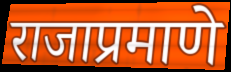
राजाप्रमाणे